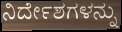
ನಿರ್ದೇಶಗಳನ್ನು